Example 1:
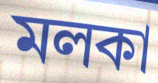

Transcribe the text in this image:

মলকা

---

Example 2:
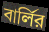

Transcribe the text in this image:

বার্লির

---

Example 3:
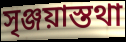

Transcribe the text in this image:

সৃঞ্জয়াস্তথা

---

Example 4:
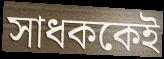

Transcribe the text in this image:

সাধককেই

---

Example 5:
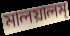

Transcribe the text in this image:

মালয়ালম্